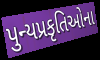
પુન્યપ્રકૃતિઓના